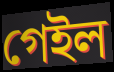
গেইল